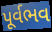
પૂર્વભવ